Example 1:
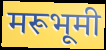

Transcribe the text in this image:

मरूभूमी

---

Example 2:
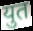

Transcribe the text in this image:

युत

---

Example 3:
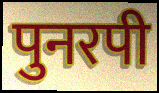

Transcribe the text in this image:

पुनरपी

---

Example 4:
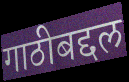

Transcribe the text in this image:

गाठीबद्दल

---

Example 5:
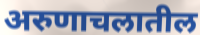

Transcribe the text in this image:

अरुणाचलातील